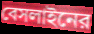
বেসলাইনের